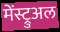
मेंस्ट्रुअल